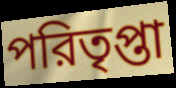
পরিতৃপ্তা